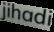
jihadi